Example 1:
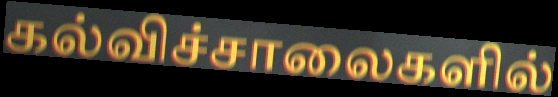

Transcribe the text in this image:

கல்விச்சாலைகளில்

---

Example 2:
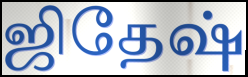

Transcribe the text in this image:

ஜிதேஷ்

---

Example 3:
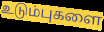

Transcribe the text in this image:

உடும்புகளை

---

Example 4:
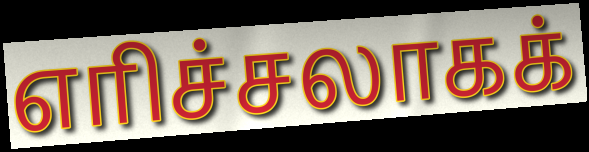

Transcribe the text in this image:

எரிச்சலாகக்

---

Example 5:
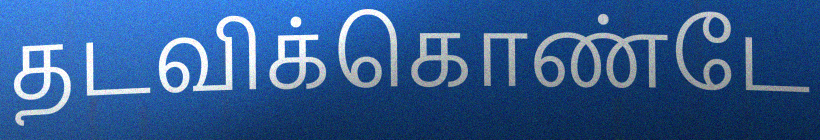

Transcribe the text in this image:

தடவிக்கொண்டே